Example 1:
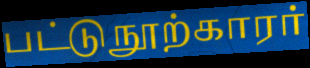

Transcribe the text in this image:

பட்டுநூற்காரர்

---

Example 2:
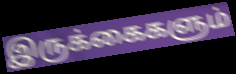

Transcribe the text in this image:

இருக்கைகளும்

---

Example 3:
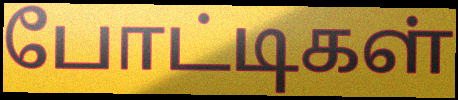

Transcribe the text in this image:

போட்டிகள்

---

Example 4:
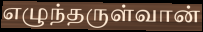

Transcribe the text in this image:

எழுந்தருள்வான்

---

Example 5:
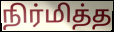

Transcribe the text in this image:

நிர்மித்த